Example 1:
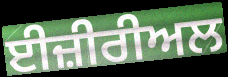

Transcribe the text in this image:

ਈਜ਼ੀਰੀਅਲ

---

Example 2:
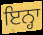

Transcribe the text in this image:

ਇਨ੍ਹਾ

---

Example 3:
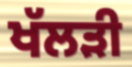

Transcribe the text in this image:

ਖੱਲੜੀ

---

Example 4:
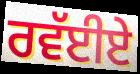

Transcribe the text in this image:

ਰਵੱਈਏ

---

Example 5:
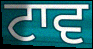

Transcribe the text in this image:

ਟਾਵ